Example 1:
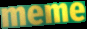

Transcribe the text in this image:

meme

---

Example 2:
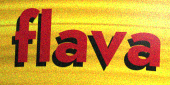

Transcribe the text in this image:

flava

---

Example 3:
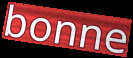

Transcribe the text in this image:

bonne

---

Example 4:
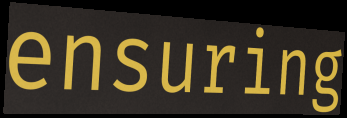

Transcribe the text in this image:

ensuring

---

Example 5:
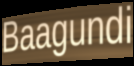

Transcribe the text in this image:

Baagundi